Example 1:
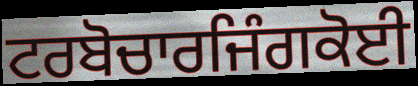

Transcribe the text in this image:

ਟਰਬੋਚਾਰਜਿੰਗਕੋਈ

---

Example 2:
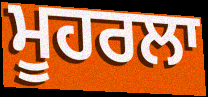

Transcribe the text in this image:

ਮੂਹਰਲਾ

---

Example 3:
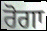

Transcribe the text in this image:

ਰੋਗਾ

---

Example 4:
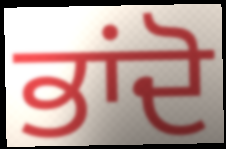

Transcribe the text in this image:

ਭਾਂਦੋ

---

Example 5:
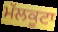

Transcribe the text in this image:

ਮੱਲਕੂਟਾ